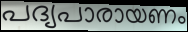
പദ്യപാരായണം